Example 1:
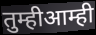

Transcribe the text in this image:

तुम्हीआम्ही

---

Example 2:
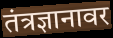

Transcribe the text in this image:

तंत्रज्ञानावर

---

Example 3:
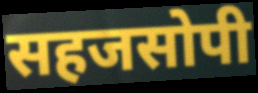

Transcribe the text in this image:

सहजसोपी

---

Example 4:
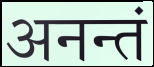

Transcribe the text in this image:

अनन्तं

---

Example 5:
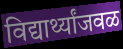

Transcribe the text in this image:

विद्यार्थ्यांजवळ